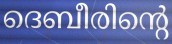
ദെബീരിന്റെ